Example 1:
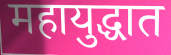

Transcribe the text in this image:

महायुद्धात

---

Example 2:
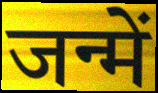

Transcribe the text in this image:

जन्में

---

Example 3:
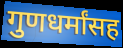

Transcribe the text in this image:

गुणधर्मांसह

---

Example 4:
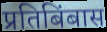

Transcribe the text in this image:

प्रतिबिंबास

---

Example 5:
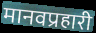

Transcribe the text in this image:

मानवप्रहारी